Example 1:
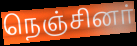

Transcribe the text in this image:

நெஞ்சினர்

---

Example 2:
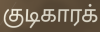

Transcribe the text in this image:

குடிகாரக்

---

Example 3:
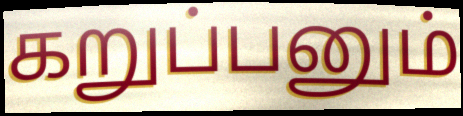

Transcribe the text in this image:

கறுப்பனும்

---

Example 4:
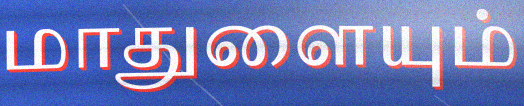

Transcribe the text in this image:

மாதுளையும்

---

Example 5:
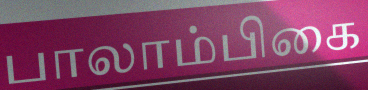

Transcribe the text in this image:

பாலாம்பிகை